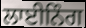
ਲਾਈਨਿੰਗ